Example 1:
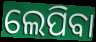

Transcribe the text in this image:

ଲେପିବା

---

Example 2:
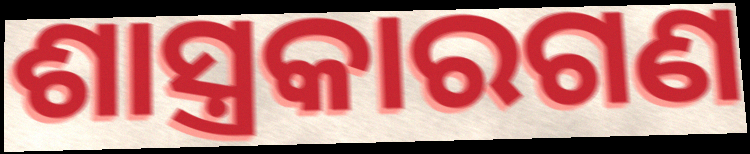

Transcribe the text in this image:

ଶାସ୍ତ୍ରକାରଗଣ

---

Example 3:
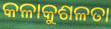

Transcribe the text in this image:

କଳାକୁଶଳତା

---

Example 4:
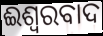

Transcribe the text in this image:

ଈଶ୍ୱରବାଦ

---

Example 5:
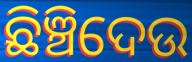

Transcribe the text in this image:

ଛିଞ୍ଚିଦେଉ